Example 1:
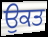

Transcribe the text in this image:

ਉਕਤ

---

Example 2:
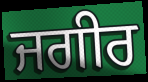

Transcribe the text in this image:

ਜਗੀਰ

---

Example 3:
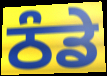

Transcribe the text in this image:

ਠੰਡੇ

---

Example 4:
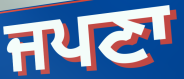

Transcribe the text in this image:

ਜਪਣਾ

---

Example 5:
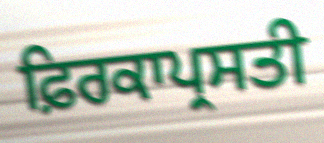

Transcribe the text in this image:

ਫ਼ਿਰਕਾਪ੍ਰਸਤੀ